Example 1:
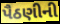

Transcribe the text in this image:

પૈઠણીની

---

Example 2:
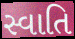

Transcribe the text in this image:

સ્વાતિ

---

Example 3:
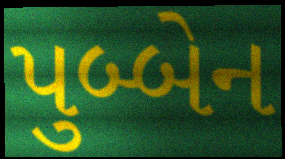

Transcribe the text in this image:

પુબ્બેન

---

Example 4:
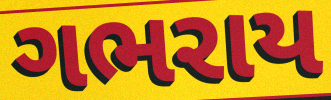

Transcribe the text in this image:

ગભરાય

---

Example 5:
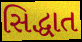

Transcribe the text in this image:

સિદ્ધાત